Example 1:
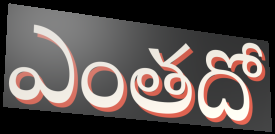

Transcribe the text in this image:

ఎంతదో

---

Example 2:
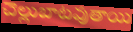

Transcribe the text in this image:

చెల్లుబాటవుతాయి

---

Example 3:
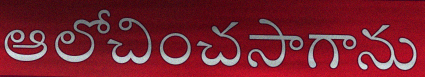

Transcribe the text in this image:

ఆలోచించసాగాను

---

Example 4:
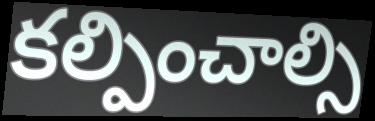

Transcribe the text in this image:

కల్పించాల్సి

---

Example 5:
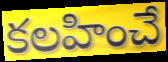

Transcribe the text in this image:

కలహించే